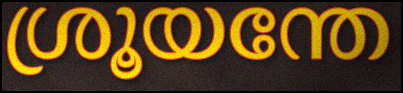
ശ്രൂയന്തേ